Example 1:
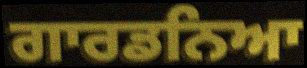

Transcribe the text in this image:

ਗਾਰਡਨਿਆ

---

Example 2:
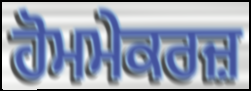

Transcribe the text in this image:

ਹੋਮਮੇਕਰਜ਼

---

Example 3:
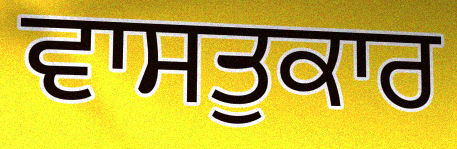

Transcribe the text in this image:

ਵਾਸਤੁਕਾਰ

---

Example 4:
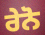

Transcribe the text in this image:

ਰੇਨੋ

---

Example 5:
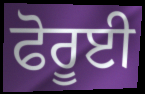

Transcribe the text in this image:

ਫੋਰੂਈ